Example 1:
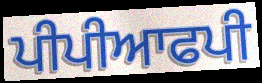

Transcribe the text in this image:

ਪੀਪੀਆਫਪੀ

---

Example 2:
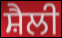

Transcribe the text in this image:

ਸ਼ੈਲੀ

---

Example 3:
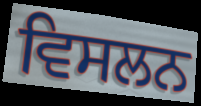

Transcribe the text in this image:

ਵਿਸਲਨ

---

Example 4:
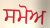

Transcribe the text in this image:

ਸਮੋਅ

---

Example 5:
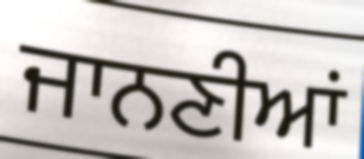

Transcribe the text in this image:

ਜਾਨਣੀਆਂ